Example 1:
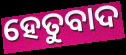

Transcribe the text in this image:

ହେତୁବାଦ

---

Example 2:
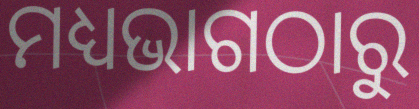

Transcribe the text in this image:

ମଧ୍ୟଭାଗଠାରୁ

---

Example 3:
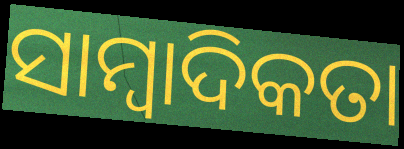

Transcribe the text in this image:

ସାମ୍ୱାଦିକତା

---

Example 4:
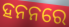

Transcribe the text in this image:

ହନନରେ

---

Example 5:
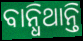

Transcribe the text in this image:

ବାନ୍ଧିଥାନ୍ତି